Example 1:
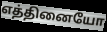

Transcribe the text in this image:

எத்தினையோ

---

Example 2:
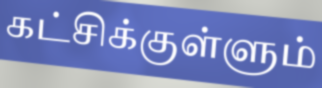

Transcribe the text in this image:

கட்சிக்குள்ளும்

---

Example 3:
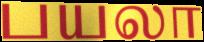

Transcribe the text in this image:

பயலா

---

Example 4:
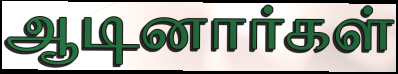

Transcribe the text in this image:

ஆடினார்கள்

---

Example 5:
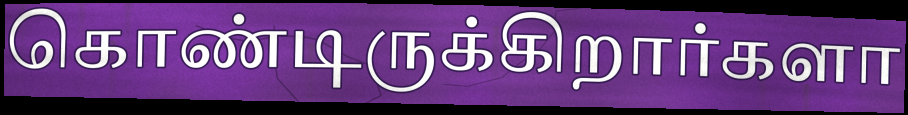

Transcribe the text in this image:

கொண்டிருக்கிறார்களா